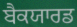
ਬੈਕਯਾਰਡ